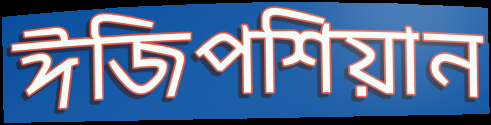
ঈজিপশিয়ান